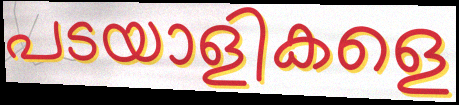
പടയാളികളെ